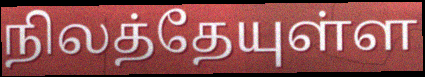
நிலத்தேயுள்ள